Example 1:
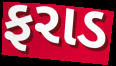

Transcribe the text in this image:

ફરાડ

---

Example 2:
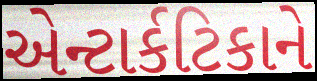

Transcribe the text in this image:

એન્ટાર્કટિકાને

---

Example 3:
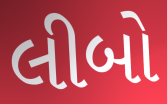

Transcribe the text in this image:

લીબો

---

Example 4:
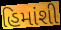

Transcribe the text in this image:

હિમાંશી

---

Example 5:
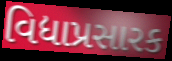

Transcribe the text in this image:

વિદ્યાપ્રસારક